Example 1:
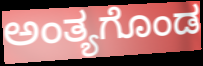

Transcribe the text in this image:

ಅಂತ್ಯಗೊಂಡ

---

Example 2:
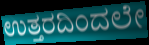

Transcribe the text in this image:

ಉತ್ತರದಿಂದಲೇ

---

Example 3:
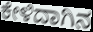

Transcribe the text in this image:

ಕೇಳಿದಾಗಿನ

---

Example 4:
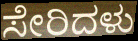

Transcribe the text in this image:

ಸೇರಿದಳು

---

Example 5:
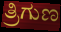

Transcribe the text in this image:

ತ್ರಿಗುಣ